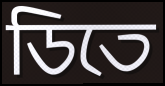
ডিতে